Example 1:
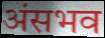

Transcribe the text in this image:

अंसभव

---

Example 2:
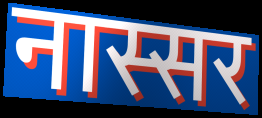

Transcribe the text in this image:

नास्सर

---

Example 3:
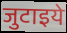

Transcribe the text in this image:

जुटाइये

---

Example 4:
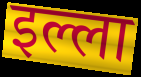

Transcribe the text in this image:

इल्ला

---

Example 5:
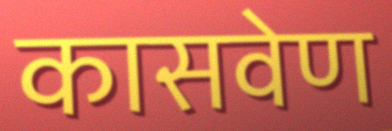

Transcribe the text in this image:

कासवेण